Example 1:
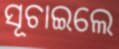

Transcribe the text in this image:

ସୂଚାଇଲେ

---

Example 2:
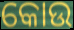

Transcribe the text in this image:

କୋଉ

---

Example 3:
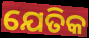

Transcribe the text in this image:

ଯେତିକ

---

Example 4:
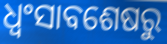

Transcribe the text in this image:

ଧ୍ୱଂସାବଶେଷରୁ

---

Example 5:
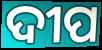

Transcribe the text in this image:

ଦୀପ